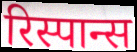
रिस्पान्स